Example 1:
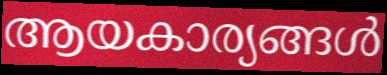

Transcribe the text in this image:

ആയകാര്യങ്ങൾ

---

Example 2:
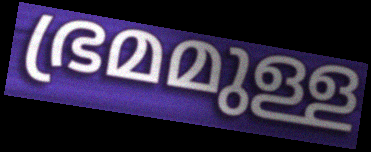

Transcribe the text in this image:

ഭ്രമമുള്ള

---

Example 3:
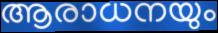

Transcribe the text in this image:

ആരാധനയും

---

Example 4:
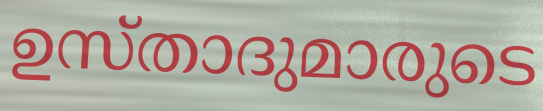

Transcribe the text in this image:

ഉസ്താദുമാരുടെ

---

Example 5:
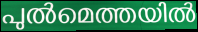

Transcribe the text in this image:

പുൽമെത്തയിൽ